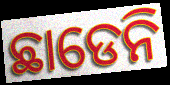
ଛାଡେନି